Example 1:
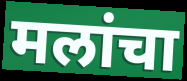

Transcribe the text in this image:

मलांचा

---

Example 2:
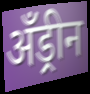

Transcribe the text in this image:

अँड्रीन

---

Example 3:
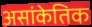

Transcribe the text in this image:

असांकेतिक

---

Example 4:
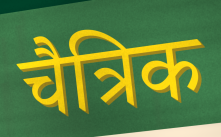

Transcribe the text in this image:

चैत्रिक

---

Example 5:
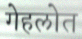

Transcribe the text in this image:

गेहलोत